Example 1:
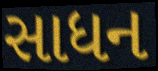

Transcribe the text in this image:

સાધન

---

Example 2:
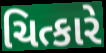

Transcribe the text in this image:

ચિત્કારે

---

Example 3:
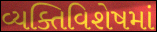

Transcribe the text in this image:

વ્યક્તિવિશેષમાં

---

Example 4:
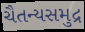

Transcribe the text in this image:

ચૈતન્યસમુદ્ર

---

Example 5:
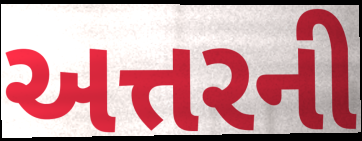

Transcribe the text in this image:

અત્તરની